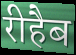
रीहैब